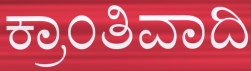
ಕ್ರಾಂತಿವಾದಿ